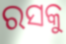
ରସକୁ